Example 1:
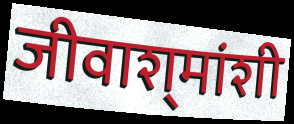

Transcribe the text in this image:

जीवाश्मांशी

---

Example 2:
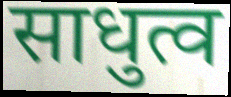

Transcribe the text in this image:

साधुत्व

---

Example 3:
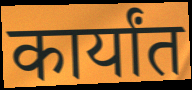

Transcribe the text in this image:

कार्यांत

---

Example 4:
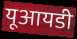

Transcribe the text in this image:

यूआयडी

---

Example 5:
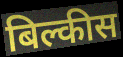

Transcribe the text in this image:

बिल्कीस